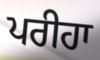
ਪਰੀਹਾ